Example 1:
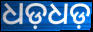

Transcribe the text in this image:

ଧଡ଼ଧଡ଼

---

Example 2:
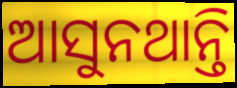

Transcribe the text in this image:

ଆସୁନଥାନ୍ତି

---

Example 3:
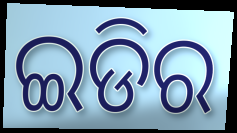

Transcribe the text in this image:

ଇଡିର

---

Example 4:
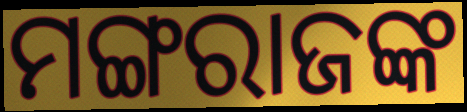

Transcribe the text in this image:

ମଙ୍ଗରାଜଙ୍କ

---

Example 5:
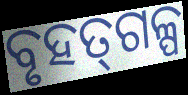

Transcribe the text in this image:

ବୃହତ୍‌ଗଳ୍ପ